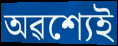
অৱশ্যেই